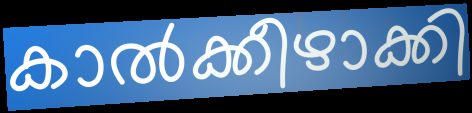
കാൽക്കീഴാക്കി